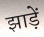
झाड़ें